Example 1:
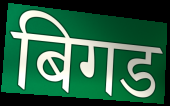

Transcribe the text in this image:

बिगड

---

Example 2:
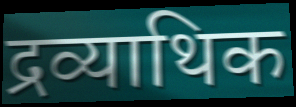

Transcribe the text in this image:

द्रव्याथिक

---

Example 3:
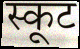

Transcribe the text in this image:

स्कूट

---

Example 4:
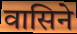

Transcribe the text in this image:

वासिने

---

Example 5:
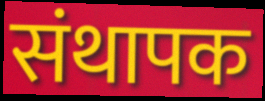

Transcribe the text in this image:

संथापक